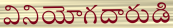
వినియోగదారుడి